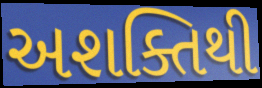
અશક્તિથી